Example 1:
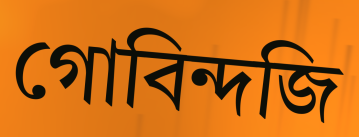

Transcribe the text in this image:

গোবিন্দজি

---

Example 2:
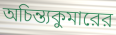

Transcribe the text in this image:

অচিন্ত্যকুমারের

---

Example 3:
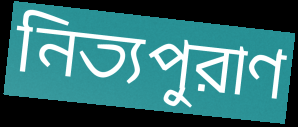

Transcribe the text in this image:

নিত্যপুরাণ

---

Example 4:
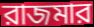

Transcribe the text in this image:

রাজমার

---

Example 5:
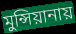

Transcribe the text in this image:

মুন্সিয়ানায়